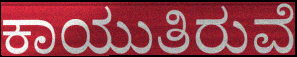
ಕಾಯುತಿರುವೆ